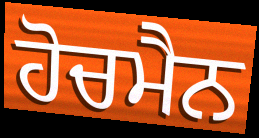
ਹੋਚਮੈਨ